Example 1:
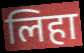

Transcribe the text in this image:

लिहा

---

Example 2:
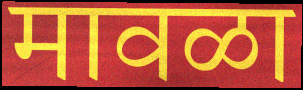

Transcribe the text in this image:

मावळा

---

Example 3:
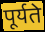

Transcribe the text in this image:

पूर्यते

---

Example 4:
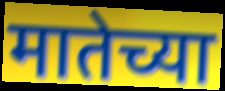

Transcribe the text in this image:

मातेच्या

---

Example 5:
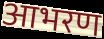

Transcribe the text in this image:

आभरण